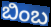
ಬಿಂಬ